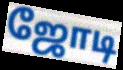
ஜோடி